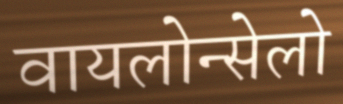
वायलोन्सेलो